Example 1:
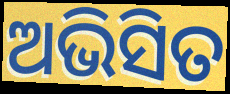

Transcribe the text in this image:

ଅଭିସିତ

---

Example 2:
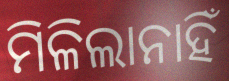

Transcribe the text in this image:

ମିଳିଲାନାହିଁ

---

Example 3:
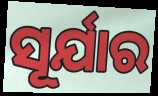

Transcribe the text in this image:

ସୂର୍ଯାର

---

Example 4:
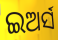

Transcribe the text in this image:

ଇଅର୍ସ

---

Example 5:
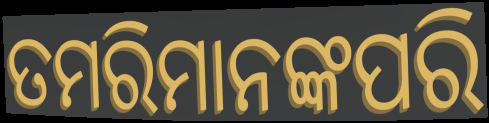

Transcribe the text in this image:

ତମରିମାନଙ୍କପରି